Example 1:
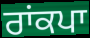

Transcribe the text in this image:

ਰਾਂਕਪਾ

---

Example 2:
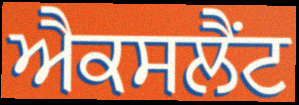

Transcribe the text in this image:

ਐਕਸਲੈਂਟ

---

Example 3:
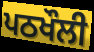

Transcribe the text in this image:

ਪਠਖੌਲੀ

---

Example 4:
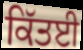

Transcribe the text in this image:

ਕਿੱਤਈ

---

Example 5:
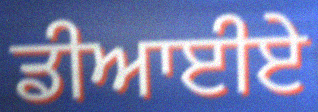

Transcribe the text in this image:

ਡੀਆਈਏ